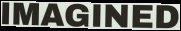
IMAGINED